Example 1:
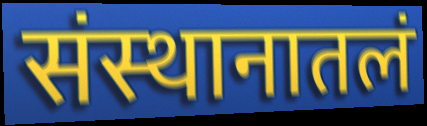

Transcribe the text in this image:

संस्थानातलं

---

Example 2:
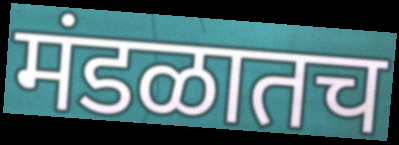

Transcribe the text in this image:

मंडळातच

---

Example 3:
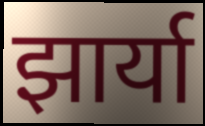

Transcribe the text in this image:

झार्या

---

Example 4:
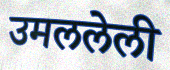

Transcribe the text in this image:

उमललेली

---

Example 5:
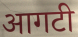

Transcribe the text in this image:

आगटी